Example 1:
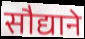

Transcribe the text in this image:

सौद्याने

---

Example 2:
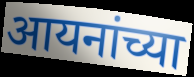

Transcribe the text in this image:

आयनांच्या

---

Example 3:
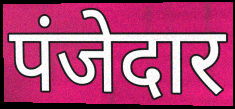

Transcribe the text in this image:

पंजेदार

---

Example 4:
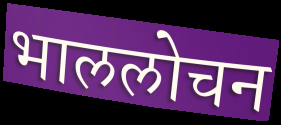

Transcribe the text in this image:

भाललोचन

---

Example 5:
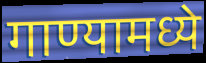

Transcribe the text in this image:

गाण्यामध्ये